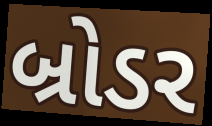
બ્રોડર